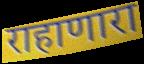
राहाणारा